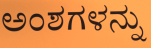
ಅಂಶಗಳನ್ನು